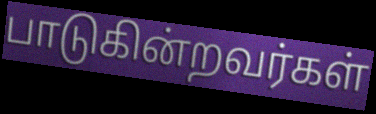
பாடுகின்றவர்கள்